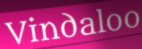
Vindaloo